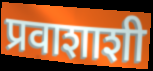
प्रवाशाशी